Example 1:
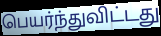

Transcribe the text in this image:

பெயர்ந்துவிட்டது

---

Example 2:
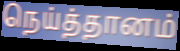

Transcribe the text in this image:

நெய்த்தானம்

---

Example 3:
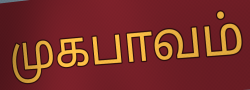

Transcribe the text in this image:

முகபாவம்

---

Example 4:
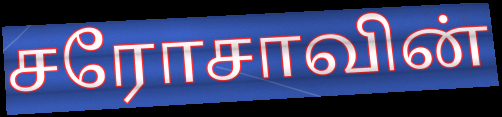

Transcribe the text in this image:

சரோசாவின்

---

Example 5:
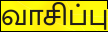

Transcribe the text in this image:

வாசிப்பு